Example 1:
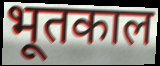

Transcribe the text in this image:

भूतकाल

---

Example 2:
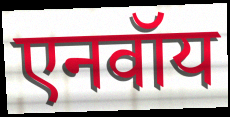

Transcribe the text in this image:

एनवॉय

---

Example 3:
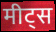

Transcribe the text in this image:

मीट्स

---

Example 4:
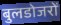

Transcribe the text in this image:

बुलडोजरों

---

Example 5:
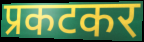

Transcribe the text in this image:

प्रकटकर